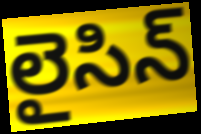
లైసిన్